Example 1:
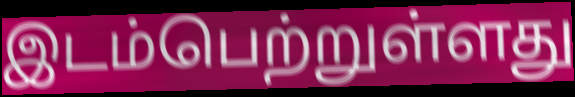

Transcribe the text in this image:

இடம்பெற்றுள்ளது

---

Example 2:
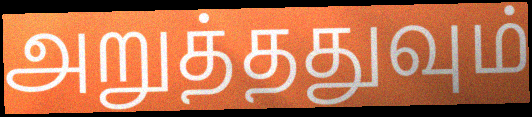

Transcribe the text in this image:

அறுத்ததுவும்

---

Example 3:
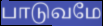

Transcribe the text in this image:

பாடுவமே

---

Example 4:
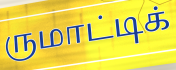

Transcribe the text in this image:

ருமாட்டிக்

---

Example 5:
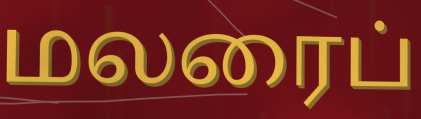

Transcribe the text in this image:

மலரைப்